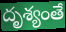
దృశ్యంతే